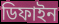
ডিফাইন